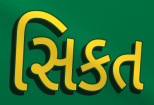
સિકત